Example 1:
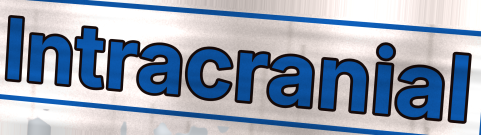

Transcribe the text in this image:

Intracranial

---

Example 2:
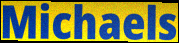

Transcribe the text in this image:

Michaels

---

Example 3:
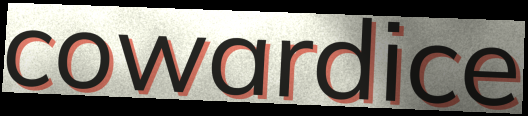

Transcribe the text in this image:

cowardice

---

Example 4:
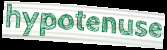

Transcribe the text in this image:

hypotenuse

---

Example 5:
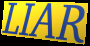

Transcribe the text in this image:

LIAR